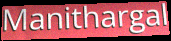
Manithargal